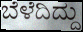
ಬೆಳೆದಿದ್ದು